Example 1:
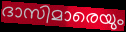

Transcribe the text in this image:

ദാസിമാരെയും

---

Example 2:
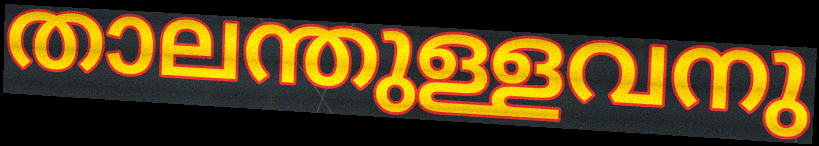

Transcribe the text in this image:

താലന്തുള്ളവനു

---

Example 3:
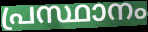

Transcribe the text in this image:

പ്രസ്ഥാനം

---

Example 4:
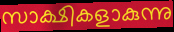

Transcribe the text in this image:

സാക്ഷികളാകുന്നു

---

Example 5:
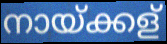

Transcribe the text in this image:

നായ്ക്കള്